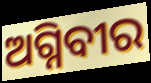
ଅଗ୍ନିବୀର